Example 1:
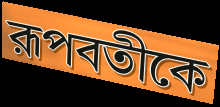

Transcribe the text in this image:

রূপবতীকে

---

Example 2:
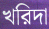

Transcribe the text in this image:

খরিদা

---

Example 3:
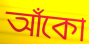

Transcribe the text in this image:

আঁকো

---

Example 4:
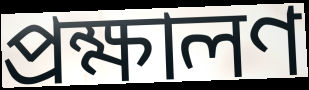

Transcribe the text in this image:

প্রক্ষালণ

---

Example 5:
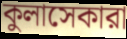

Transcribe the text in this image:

কুলাসেকারা